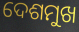
ଦେଶମୁଖ